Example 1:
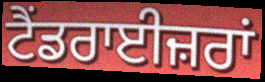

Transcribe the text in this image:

ਟੈਂਡਰਾਈਜ਼ਰਾਂ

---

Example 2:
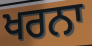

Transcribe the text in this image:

ਖਰਨਾ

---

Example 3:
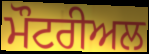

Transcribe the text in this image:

ਮੌਟਰੀਅਲ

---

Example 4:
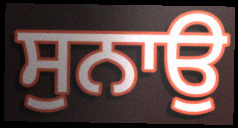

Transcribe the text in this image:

ਸੁਨਾਉ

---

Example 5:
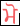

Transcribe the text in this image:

ਮੋ